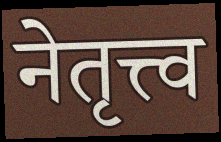
नेतृत्त्व